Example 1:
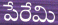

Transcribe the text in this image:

పేరేమి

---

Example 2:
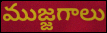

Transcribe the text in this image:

ముజ్జగాలు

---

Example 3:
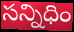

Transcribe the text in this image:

సన్నిధిం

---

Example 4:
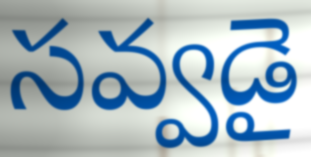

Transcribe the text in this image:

సవ్వడై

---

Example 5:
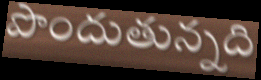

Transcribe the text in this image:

పొందుతున్నది